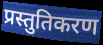
प्रस्तुतिकरण